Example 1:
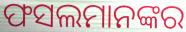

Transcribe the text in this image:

ଫସଲମାନଙ୍କର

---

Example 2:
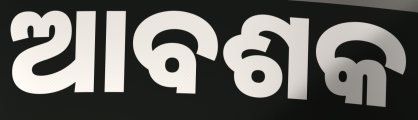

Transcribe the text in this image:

ଆବଶକ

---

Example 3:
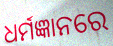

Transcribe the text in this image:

ଧର୍ମଜ୍ଞାନରେ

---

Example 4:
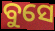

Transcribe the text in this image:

ବୁସେ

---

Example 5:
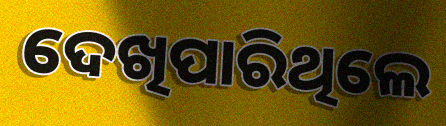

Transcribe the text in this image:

ଦେଖିପାରିଥିଲେ